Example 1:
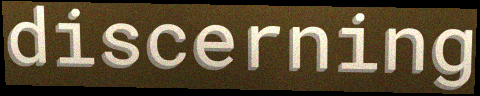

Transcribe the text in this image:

discerning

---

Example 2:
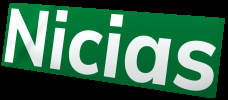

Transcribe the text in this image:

Nicias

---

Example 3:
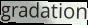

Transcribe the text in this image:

gradation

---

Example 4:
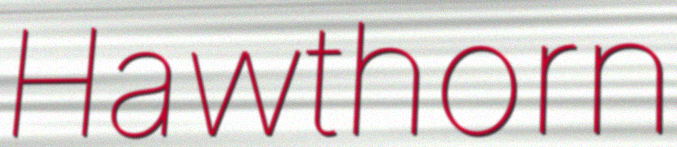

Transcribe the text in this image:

Hawthorn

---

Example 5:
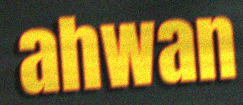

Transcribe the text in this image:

ahwan